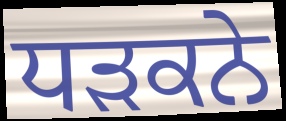
ਧਡ਼ਕਨੇ